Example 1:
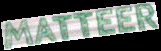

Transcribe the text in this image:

MATTEER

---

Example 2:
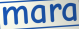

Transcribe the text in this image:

mara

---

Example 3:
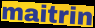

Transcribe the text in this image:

maitrin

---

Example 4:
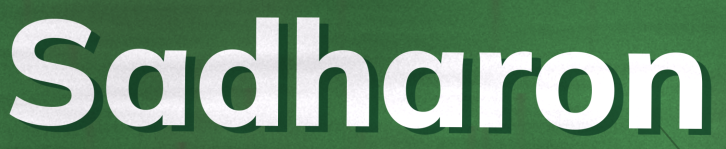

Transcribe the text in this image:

Sadharon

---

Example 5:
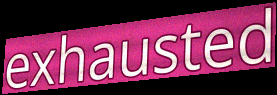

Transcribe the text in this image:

exhausted